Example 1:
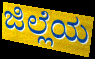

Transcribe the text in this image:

ಜಿಲ್ಲೆಯ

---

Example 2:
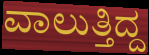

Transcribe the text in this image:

ವಾಲುತ್ತಿದ್ದ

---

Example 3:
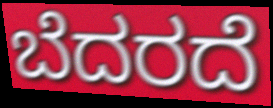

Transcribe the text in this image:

ಬೆದರದೆ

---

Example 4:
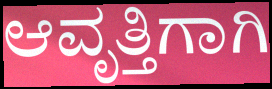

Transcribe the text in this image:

ಆವೃತ್ತಿಗಾಗಿ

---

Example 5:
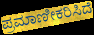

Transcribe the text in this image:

ಪ್ರಮಾಣೀಕರಿಸಿದೆ